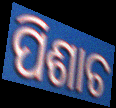
ପିଶାଚ